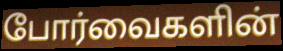
போர்வைகளின்